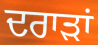
ਦਰਾੜਾਂ